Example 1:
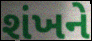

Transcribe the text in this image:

શંખને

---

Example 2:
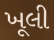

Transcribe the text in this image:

ખૂલી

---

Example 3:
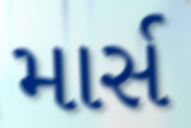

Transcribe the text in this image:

માર્સ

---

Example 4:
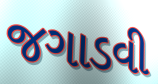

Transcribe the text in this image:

જગાડવી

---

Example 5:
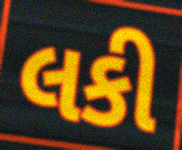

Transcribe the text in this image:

લકી